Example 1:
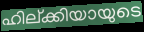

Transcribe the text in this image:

ഹില്ക്കിയായുടെ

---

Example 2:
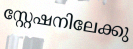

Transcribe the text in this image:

സ്റ്റേഷനിലേക്കു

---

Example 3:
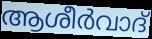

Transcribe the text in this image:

ആശീർവാദ്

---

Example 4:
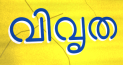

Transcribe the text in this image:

വിവൃത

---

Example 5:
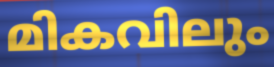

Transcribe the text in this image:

മികവിലും